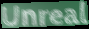
Unreal